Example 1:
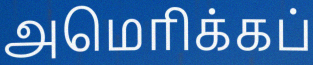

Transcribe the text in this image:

அமெரிக்கப்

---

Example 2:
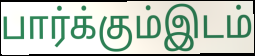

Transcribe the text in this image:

பார்க்கும்இடம்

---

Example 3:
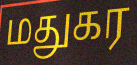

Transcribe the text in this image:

மதுகர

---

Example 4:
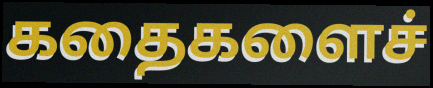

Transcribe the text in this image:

கதைகளைச்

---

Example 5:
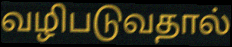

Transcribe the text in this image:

வழிபடுவதால்